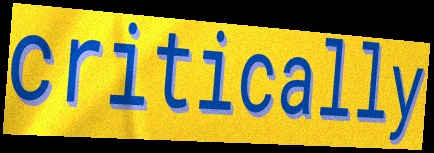
critically